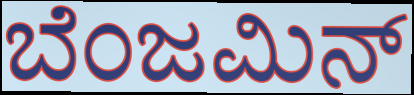
ಬೆಂಜಮಿನ್